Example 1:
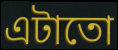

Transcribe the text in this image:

এটাতো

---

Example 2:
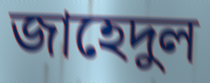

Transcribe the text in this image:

জাহেদুল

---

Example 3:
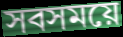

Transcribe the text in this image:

সবসময়ে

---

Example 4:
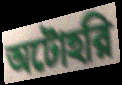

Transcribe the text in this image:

অটোহরি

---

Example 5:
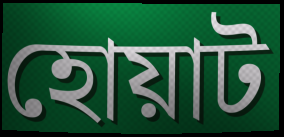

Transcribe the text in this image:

হোয়াট